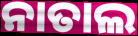
ନାତାଲ